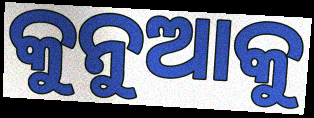
କୁନୁଆକୁ